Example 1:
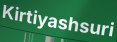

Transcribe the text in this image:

Kirtiyashsuri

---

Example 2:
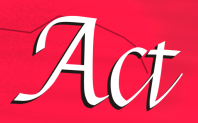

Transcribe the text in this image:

Act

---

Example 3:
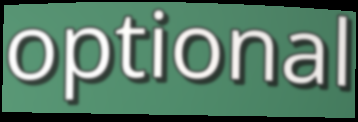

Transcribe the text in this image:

optional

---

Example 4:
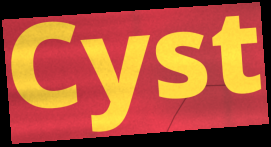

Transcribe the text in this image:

Cyst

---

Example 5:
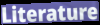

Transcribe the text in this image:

Literature